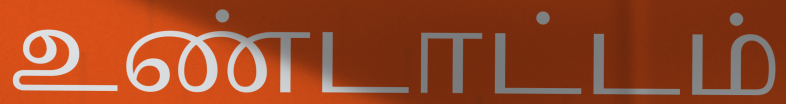
உண்டாட்டம்